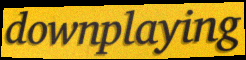
downplaying